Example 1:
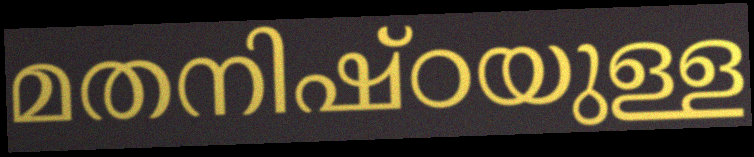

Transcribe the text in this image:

മതനിഷ്ഠയുള്ള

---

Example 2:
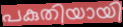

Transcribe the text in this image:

പകുതിയായി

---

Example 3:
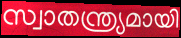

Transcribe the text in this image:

സ്വാതന്ത്ര്യമായി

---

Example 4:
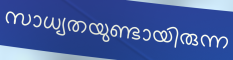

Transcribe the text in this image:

സാധ്യതയുണ്ടായിരുന്ന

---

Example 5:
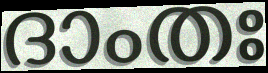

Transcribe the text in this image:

ദാംതഃ